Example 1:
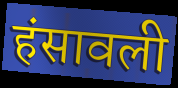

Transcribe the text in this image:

हंसावली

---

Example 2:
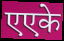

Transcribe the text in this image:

एएके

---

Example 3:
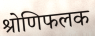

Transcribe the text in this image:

श्रोणिफलक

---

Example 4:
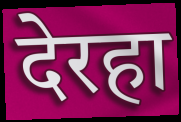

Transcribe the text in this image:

देरहा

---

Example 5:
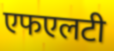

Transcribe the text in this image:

एफएलटी